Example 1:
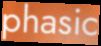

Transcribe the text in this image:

phasic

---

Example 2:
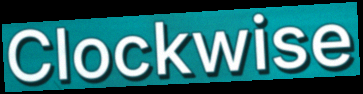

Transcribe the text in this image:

Clockwise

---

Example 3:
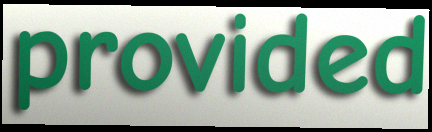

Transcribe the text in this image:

provided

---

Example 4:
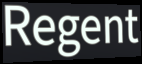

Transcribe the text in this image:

Regent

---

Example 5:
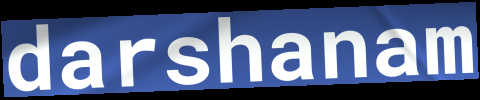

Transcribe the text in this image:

darshanam